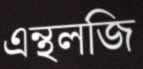
এন্থলজি